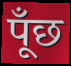
पूँछ